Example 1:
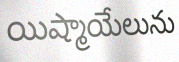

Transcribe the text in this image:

యిష్మాయేలును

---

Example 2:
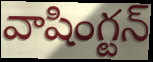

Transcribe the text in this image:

వాషింగ్టన్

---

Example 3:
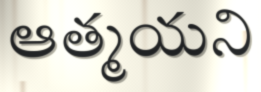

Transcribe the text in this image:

ఆత్మయని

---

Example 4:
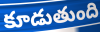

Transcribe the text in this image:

కూడుతుంది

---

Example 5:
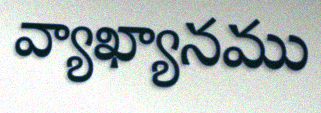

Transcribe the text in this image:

వ్యాఖ్యానము